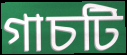
গাচটি